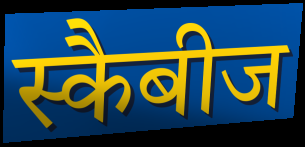
स्कैबीज